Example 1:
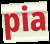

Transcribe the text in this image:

pia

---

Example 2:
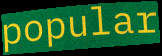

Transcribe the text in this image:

popular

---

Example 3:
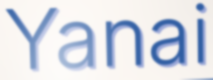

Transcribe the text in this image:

Yanai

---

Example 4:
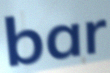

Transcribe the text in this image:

bar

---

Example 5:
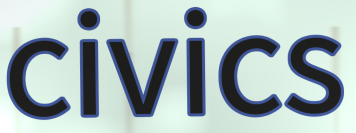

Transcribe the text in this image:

civics